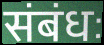
संबंधः